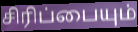
சிரிப்பையும்